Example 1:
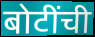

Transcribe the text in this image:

बोटींची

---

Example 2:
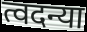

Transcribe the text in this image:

त्वदन्या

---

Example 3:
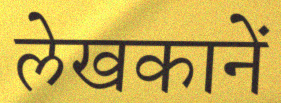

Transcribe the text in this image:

लेखकानें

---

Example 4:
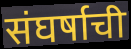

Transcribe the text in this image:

संघर्षाची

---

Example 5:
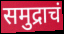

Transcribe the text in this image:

समुद्राचं